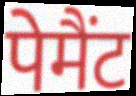
पेमैंट